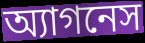
অ্যাগনেস